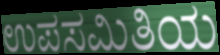
ಉಪಸಮಿತಿಯ